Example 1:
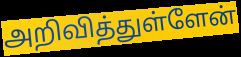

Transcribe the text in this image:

அறிவித்துள்ளேன்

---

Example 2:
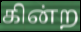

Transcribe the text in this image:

கின்ற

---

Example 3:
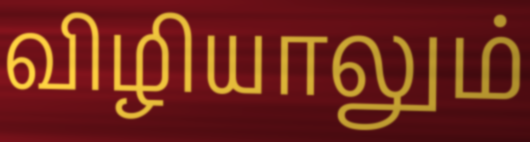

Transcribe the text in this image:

விழியாலும்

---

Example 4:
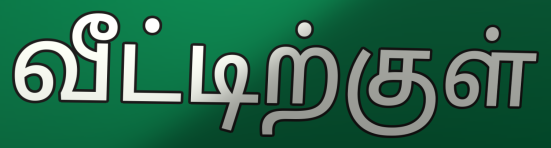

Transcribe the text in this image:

வீட்டிற்குள்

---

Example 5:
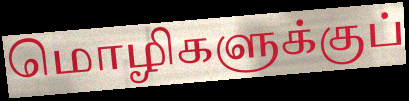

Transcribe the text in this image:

மொழிகளுக்குப்